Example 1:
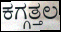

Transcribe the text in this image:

ಕಗ್ಗತ್ತಲ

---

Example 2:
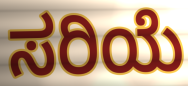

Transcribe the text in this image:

ಸರಿಯೆ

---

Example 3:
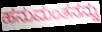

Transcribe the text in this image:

ಹನುಮಂತನನ್ನು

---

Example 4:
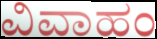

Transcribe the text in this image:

ವಿವಾಹಂ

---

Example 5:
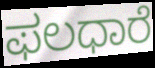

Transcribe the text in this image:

ಫಲಧಾರೆ